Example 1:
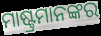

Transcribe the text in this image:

ମାଷ୍ଟ୍ରମାନଙ୍କର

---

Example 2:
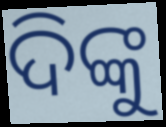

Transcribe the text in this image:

ଦିଙ୍କୁ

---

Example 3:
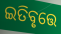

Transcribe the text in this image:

ଇତିବୃତ୍ତେ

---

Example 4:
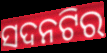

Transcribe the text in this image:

ସଦନଟିର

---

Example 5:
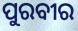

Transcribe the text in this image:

ପୁରବୀର